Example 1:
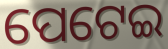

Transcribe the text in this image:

ପେଟେଇ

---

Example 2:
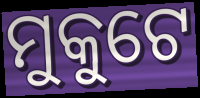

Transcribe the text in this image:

ମୁକୁଟେ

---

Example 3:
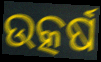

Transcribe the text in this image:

ଉତ୍କର୍ଷ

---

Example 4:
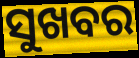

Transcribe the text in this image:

ସୁଖବର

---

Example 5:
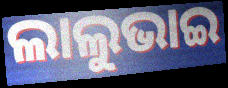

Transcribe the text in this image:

ଲାଲୁଭାଇ